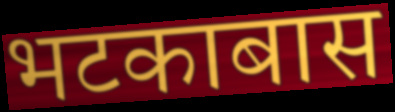
भटकाबास